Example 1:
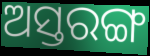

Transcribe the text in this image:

ଅସ୍ତରଙ୍ଗ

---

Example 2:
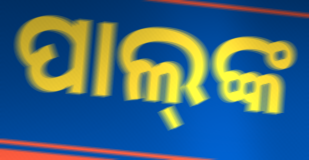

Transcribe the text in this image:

ପାଲ୍‌ଙ୍କ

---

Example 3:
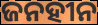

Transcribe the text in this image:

ଜନହୀନ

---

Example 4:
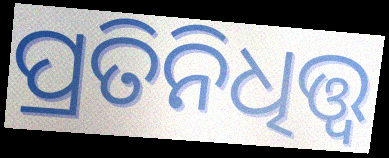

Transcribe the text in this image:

ପ୍ରତିନିଧିତ୍ତ୍ୱ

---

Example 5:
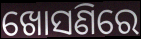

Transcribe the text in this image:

ଖୋସଣିରେ